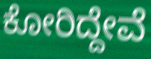
ಕೋರಿದ್ದೇವೆ